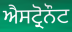
ਐਸਟ੍ਰੋਨੌਟ